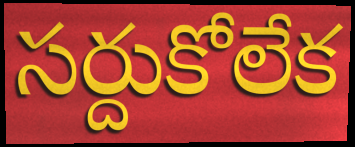
సర్దుకోలేక